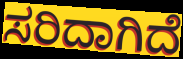
ಸರಿದಾಗಿದೆ